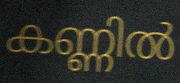
കണ്ണിൽ